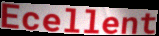
Ecellent